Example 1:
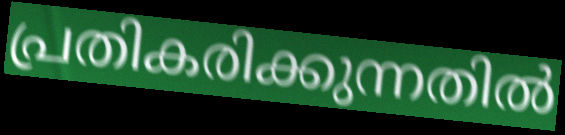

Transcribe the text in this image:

പ്രതികരിക്കുന്നതിൽ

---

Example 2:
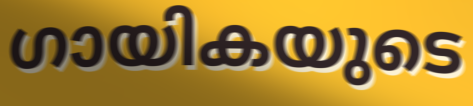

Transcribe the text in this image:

ഗായികയുടെ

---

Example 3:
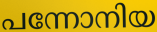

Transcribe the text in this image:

പന്നോനിയ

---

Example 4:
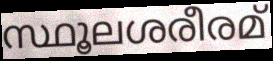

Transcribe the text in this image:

സ്ഥൂലശരീരമ്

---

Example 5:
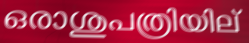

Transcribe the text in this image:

ഒരാശുപത്രിയില്